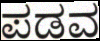
ಪಡವ